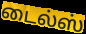
டைல்ஸ்